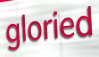
gloried